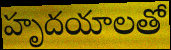
హృదయాలతో